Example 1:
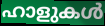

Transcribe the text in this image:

ഹാളുകൾ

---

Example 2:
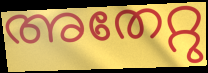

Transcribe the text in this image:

അതേറ്റു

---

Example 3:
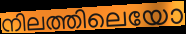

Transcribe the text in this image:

നിലത്തിലെയോ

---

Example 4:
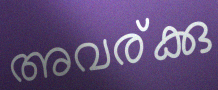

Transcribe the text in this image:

അവര്ക്കു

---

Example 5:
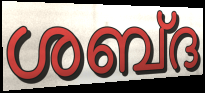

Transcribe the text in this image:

ശബ്‌ദ